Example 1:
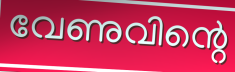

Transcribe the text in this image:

വേണുവിന്റെ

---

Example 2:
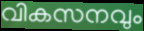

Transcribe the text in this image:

വികസനവും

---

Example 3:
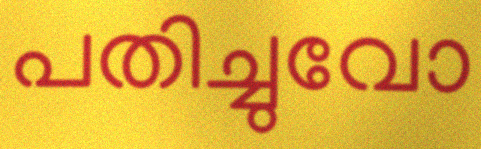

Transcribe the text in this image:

പതിച്ചുവോ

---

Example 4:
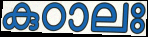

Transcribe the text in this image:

കുഠാലഃ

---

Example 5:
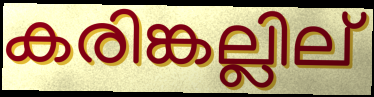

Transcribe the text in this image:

കരിങ്കല്ലില്